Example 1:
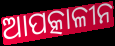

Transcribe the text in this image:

ଆପତ୍କାଳୀନ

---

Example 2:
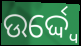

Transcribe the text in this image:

ଉର୍ଦ୍ଦ୍ୱେ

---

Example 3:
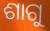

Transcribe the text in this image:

ଶାଗୁ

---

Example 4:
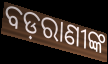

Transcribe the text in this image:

ବଡ଼ରାଣୀଙ୍କ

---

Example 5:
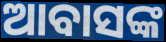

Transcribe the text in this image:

ଆବାସଙ୍କ